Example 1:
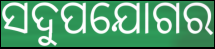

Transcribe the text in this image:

ସଦୁପଯୋଗର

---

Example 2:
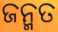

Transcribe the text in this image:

ଜନ୍ମତ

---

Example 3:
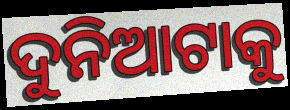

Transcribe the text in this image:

ଦୁନିଆଟାକୁ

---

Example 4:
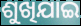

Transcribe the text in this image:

ଶୁଖିଯାଇ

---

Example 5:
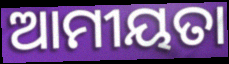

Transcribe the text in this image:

ଆମୀୟତା